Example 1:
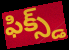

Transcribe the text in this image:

ఫిక్స్డ్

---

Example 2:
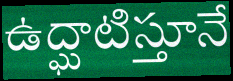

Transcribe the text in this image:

ఉద్ఘాటిస్తూనే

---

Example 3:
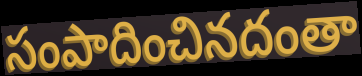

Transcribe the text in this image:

సంపాదించినదంతా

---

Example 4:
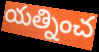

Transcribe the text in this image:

యత్నించ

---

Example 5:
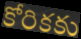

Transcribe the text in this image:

కోరికకు